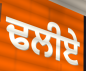
ਢਲੀਏ